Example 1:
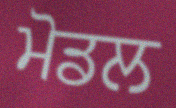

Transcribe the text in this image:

ਮੋਡਲ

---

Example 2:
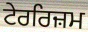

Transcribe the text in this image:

ਟੇਰਰਿਜ਼ਮ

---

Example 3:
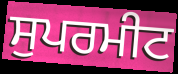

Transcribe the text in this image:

ਸੁਪਰਮੀਟ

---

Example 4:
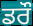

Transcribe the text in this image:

ਡਰੌ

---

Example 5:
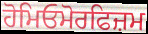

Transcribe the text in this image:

ਹੋਮਿਓਮੋਰਫਿਜ਼ਮ